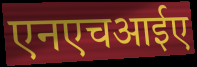
एनएचआईए